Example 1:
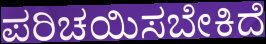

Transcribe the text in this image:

ಪರಿಚಯಿಸಬೇಕಿದೆ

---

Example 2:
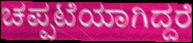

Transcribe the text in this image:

ಚಪ್ಪಟೆಯಾಗಿದ್ದರೆ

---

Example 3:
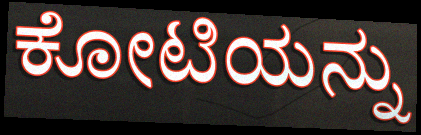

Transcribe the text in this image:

ಕೋಟಿಯನ್ನು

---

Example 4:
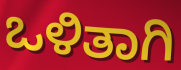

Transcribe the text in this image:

ಒಳಿತಾಗಿ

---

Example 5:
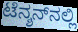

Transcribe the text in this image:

ಟೆನ್ಶನ್‌ನಲ್ಲಿ